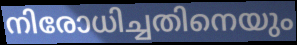
നിരോധിച്ചതിനെയും